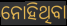
ନୋହିଥିବା